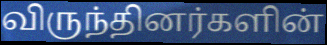
விருந்தினர்களின்